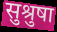
सुश्रुषा